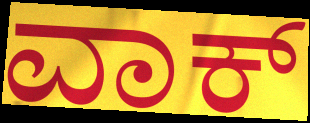
ವಾಕ್